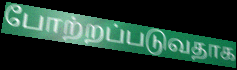
போற்றப்படுவதாக